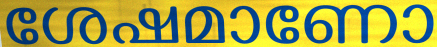
ശേഷമാണോ